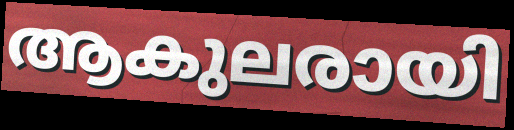
ആകുലരായി